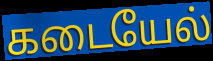
கடையேல்